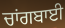
ਚਾਂਗਬਾਈ